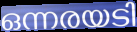
ഒന്നരയടി